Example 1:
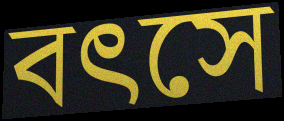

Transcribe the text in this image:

বৎসে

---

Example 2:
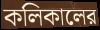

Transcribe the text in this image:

কলিকালের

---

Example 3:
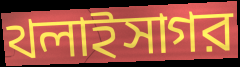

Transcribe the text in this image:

থলাইসাগর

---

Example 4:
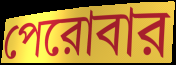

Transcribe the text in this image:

পেরোবার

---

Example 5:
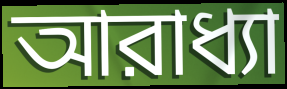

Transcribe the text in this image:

আরাধ্যা